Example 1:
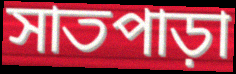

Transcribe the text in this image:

সাতপাড়া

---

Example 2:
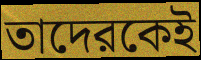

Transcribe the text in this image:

তাদেরকেই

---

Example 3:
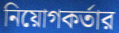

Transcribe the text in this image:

নিয়োগকর্তার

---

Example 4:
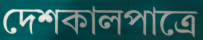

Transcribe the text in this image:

দেশকালপাত্রে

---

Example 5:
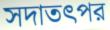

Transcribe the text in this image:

সদাতৎপর